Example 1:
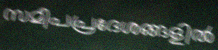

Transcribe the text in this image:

സമീപപ്രദേശങ്ങളിൽ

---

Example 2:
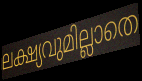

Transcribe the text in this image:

ലക്ഷ്യവുമില്ലാതെ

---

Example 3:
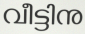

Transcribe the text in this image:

വീട്ടിനു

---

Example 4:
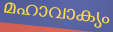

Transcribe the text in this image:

മഹാവാക്യം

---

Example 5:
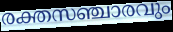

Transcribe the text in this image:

രക്തസഞ്ചാരവും